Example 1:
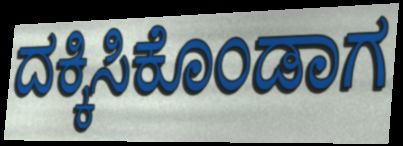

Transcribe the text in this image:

ದಕ್ಕಿಸಿಕೊಂಡಾಗ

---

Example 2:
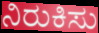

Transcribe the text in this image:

ನಿರುಕಿಸು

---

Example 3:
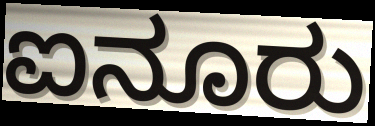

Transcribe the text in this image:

ಐನೂರು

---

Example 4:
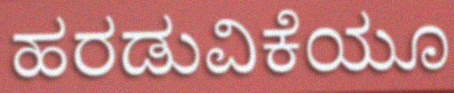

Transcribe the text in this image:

ಹರಡುವಿಕೆಯೂ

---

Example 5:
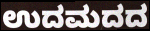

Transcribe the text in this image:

ಉದಮದದ